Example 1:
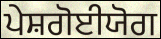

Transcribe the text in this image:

ਪੇਸ਼ਗੋਈਯੋਗ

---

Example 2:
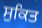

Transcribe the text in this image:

ਸੁਕਿਤ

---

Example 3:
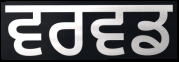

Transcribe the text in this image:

ਵਰਵਡ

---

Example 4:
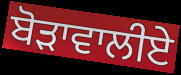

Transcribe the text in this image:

ਬੋੜਾਵਾਲੀਏ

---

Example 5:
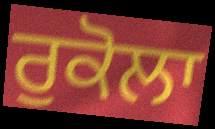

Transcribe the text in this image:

ਰੁਕੋਲਾ